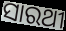
ସାରଥୀ